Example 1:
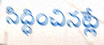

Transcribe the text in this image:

సిద్ధించినట్లే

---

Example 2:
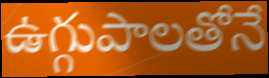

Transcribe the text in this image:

ఉగ్గుపాలతోనే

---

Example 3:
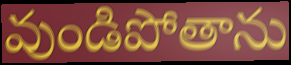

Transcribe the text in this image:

వుండిపోతాను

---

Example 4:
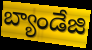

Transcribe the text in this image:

బ్యాండేజి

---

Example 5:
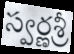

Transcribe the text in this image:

స్వర్ణశ్రీ